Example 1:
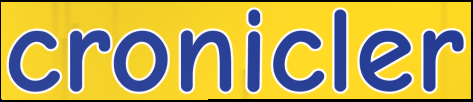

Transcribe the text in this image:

cronicler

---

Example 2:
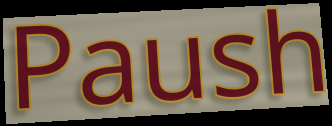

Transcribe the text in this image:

Paush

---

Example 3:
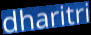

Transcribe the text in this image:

dharitri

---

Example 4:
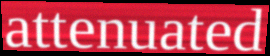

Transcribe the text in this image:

attenuated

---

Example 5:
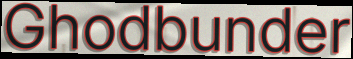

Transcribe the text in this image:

Ghodbunder